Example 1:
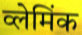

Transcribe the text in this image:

व्लेमिंक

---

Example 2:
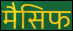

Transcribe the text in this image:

मैसिफ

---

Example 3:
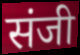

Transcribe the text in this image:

संजी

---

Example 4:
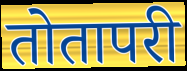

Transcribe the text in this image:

तोतापरी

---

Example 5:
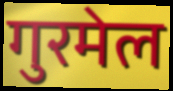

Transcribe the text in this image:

गुरमेल